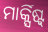
ମାର୍କ୍ସିଷ୍ଟ୍